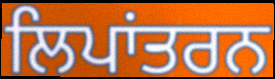
ਲਿਪਾਂਤਰਨ